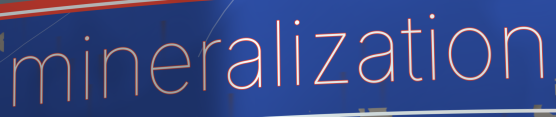
mineralization